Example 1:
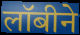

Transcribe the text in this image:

लॉबीने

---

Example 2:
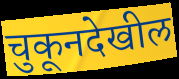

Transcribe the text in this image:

चुकूनदेखील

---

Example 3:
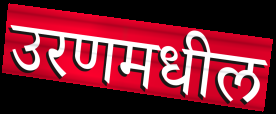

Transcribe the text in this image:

उरणमधील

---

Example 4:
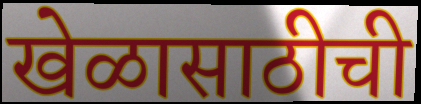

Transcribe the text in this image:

खेळासाठीची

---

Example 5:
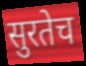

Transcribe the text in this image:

सुरतेच